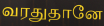
வரதுதானே